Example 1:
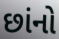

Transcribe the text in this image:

છાંનો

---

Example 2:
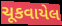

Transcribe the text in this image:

ચૂકવાયેલ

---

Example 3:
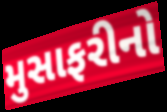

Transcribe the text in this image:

મુસાફરીનો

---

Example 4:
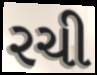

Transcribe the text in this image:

રચી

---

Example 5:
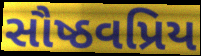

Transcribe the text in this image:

સૌષ્ઠવપ્રિય